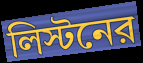
লিস্টনের